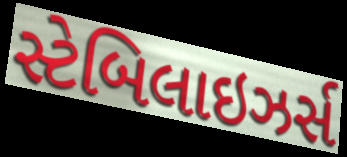
સ્ટેબિલાઇઝર્સ